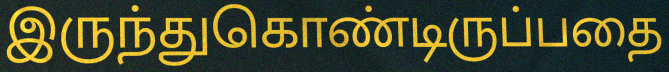
இருந்துகொண்டிருப்பதை